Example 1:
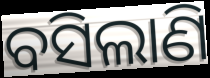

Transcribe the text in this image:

ବସିଲାଣି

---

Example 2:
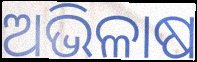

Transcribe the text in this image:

ଅଭିଳାଷ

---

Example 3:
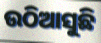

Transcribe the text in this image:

ଉଠିଆସୁଛି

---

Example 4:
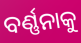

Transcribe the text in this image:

ବର୍ଣ୍ଣନାକୁ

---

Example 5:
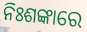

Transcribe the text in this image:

ନିଃଶଙ୍କାରେ